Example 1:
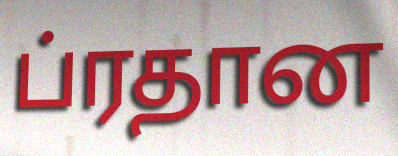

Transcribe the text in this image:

ப்ரதான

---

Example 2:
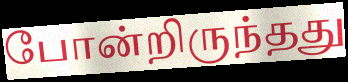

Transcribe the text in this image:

போன்றிருந்தது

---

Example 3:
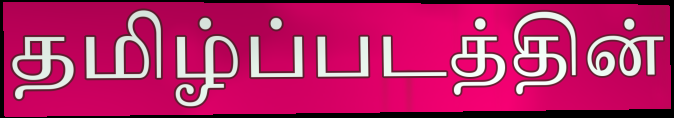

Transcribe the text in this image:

தமிழ்ப்படத்தின்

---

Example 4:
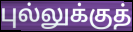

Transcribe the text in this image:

புல்லுக்குத்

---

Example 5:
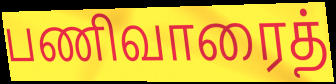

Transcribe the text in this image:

பணிவாரைத்